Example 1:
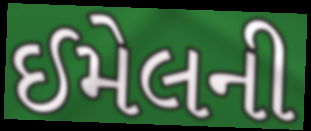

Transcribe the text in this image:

ઈમેલની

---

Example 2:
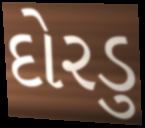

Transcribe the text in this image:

દોરડુ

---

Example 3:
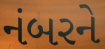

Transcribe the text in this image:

નંબરને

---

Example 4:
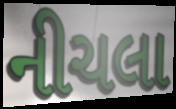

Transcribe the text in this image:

નીચલા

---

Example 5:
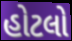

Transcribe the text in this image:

હોટલો